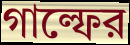
গাল্ফের